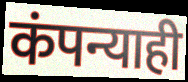
कंपन्याही